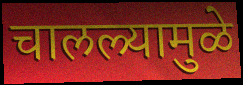
चालल्यामुळे